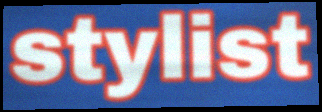
stylist